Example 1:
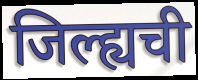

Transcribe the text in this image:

जिल्ह्यची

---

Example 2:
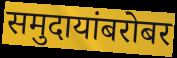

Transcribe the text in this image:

समुदायांबरोबर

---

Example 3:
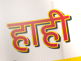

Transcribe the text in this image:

हाही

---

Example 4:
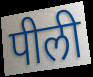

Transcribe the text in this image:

पीली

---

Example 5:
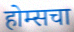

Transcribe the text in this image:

होम्सचा